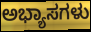
ಅಭ್ಯಾಸಗಳು